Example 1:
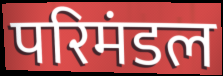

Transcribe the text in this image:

परिमंडल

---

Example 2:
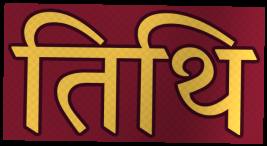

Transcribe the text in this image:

तिथि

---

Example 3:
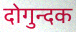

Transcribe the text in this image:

दोगुन्दक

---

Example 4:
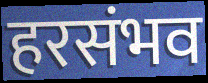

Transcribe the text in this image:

हरसंभव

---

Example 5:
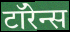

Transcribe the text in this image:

टॉरेन्स